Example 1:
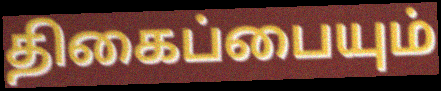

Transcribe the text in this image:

திகைப்பையும்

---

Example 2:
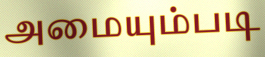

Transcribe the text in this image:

அமையும்படி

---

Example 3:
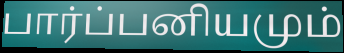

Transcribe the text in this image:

பார்ப்பனியமும்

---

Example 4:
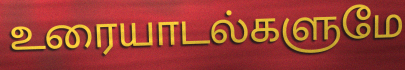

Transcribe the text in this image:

உரையாடல்களுமே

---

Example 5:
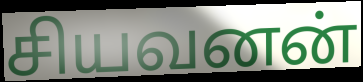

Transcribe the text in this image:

சியவனன்